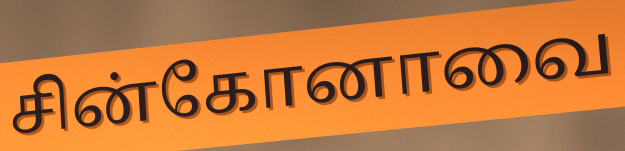
சின்கோனாவை